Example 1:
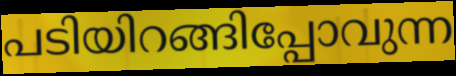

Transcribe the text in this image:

പടിയിറങ്ങിപ്പോവുന്ന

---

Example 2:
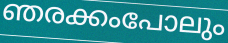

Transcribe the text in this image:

ഞരക്കംപോലും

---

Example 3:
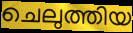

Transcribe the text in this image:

ചെലുത്തിയ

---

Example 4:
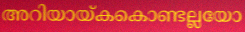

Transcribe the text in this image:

അറിയായ്കകൊണ്ടല്ലയോ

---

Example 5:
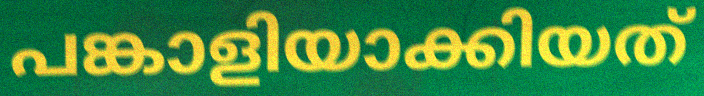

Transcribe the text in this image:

പങ്കാളിയാക്കിയത്